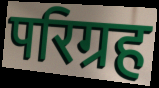
परिग्रह